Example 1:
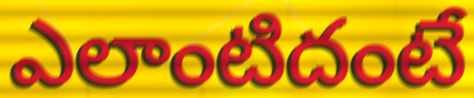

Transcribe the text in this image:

ఎలాంటిదంటే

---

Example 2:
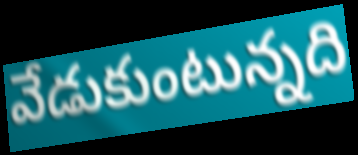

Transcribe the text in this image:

వేడుకుంటున్నది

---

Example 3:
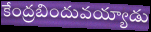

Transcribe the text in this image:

కేంద్రబిందువయ్యాడు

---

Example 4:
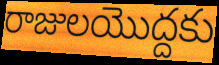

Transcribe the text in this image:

రాజులయొద్దకు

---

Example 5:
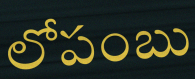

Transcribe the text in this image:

లోపంబు